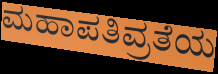
ಮಹಾಪತಿವ್ರತೆಯ